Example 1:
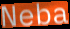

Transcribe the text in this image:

Neba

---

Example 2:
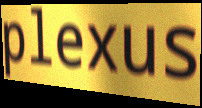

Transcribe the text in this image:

plexus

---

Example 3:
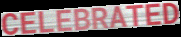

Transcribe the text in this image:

CELEBRATED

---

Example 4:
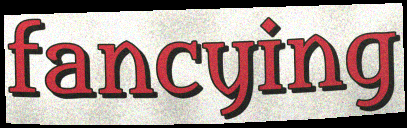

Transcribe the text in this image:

fancying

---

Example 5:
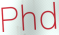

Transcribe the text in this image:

Phd